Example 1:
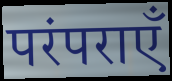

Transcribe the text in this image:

परंपराएँ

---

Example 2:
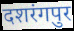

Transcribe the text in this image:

दशरंगपुर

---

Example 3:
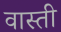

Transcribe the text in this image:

वास्ती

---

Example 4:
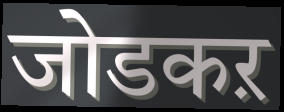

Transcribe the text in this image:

जोडकऱ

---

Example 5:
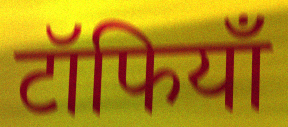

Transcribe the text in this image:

टॉफियाँ